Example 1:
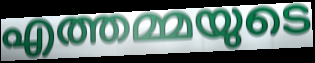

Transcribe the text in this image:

എത്തമ്മയുടെ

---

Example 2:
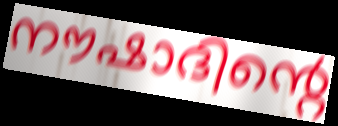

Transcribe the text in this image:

നൗഷാദിന്റെ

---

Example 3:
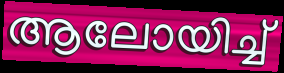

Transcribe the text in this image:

ആലോയിച്ച്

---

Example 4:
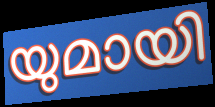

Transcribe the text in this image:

യുമായി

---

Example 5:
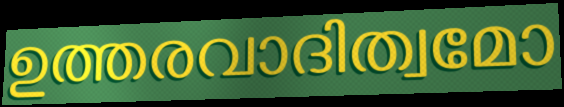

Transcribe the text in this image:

ഉത്തരവാദിത്വമോ